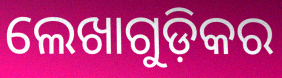
ଲେଖାଗୁଡ଼ିକର